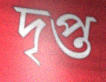
দৃপ্ত